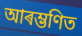
আৰম্ভণিত